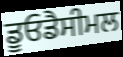
ਡੂਓਡੈਸੀਮਲ